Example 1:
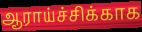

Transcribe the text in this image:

ஆராய்ச்சிக்காக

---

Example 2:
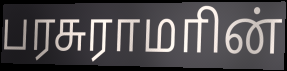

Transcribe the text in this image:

பரசுராமரின்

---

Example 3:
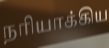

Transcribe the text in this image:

நரியாக்கிய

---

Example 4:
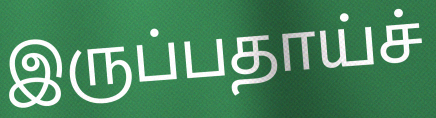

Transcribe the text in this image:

இருப்பதாய்ச்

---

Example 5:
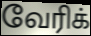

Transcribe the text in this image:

வேரிக்